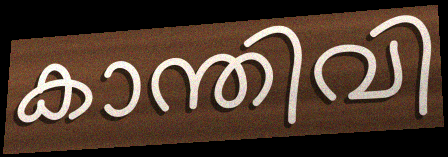
കാന്തിവി